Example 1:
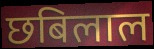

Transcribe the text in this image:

छबिलाल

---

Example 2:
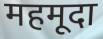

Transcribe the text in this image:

महमूदा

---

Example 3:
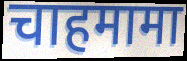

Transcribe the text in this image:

चाहमामा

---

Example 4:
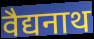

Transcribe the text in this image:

वैद्यनाथ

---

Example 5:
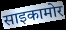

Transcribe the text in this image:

साइकामोर